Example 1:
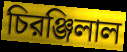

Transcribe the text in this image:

চিরঞ্জিলাল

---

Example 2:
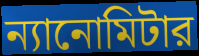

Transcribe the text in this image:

ন্যানোমিটার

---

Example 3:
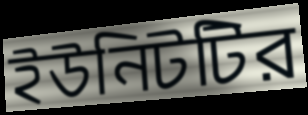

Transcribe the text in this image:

ইউনিটটির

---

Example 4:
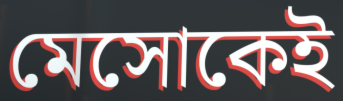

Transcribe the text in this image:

মেসোকেই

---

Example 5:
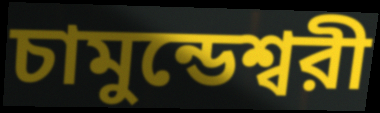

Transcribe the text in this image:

চামুন্ডেশ্বরী